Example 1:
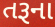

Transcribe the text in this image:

તરૂના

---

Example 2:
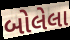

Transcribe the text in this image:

બોલેલા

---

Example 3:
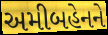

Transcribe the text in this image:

અમીબહેનને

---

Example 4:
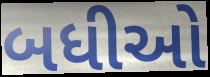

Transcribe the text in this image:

બધીઓ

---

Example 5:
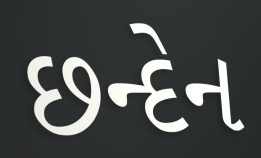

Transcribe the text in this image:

છન્દેન